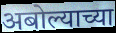
अबोल्याच्या